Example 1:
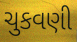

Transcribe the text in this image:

ચુકવણી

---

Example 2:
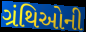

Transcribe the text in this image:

ગ્રંથિઓની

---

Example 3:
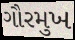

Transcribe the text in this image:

ગૌરમુખ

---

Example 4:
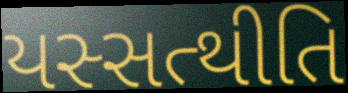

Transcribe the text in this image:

યસ્સત્થીતિ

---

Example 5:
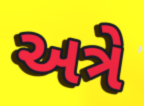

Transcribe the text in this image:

અત્રે